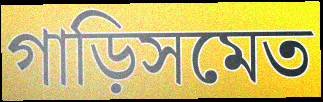
গাড়িসমেত